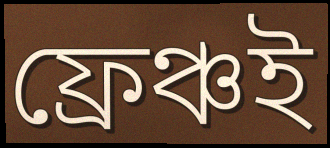
ফ্রেঞ্চই